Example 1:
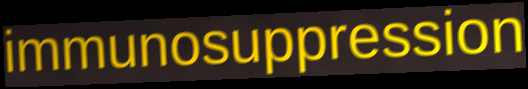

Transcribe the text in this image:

immunosuppression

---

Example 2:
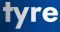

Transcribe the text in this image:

tyre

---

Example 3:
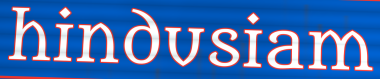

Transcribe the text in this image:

hindusiam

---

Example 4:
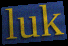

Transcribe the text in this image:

luk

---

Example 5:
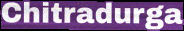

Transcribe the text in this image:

Chitradurga